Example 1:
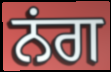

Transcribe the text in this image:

ਨਂਗ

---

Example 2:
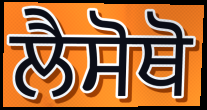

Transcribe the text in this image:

ਲੈਸੋਥੋ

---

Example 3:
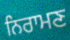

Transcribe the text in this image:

ਨਿਰਾਮਣ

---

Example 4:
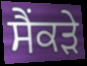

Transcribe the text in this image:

ਸੈਂਕੜੇ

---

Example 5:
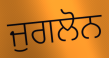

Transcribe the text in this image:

ਜੁਗਲੋਨ